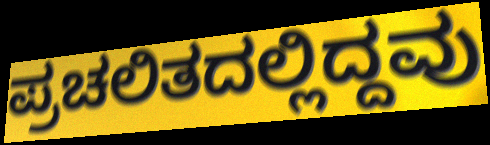
ಪ್ರಚಲಿತದಲ್ಲಿದ್ದವು